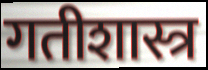
गतीशास्त्र